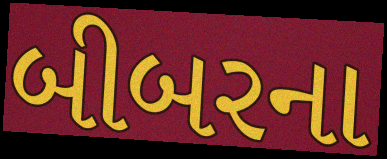
બીબરના